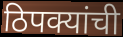
ठिपक्यांची